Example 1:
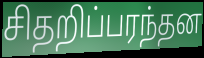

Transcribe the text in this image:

சிதறிப்பரந்தன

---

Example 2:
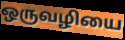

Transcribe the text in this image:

ஒருவழியை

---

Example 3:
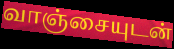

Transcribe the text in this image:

வாஞ்சையுடன்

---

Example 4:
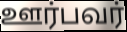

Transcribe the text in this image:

ஊர்பவர்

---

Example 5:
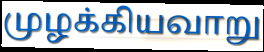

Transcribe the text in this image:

முழக்கியவாறு